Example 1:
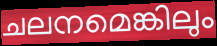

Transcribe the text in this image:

ചലനമെങ്കിലും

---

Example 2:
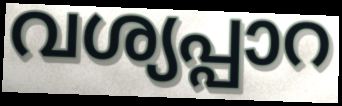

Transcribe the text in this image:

വശ്യപ്പാറ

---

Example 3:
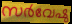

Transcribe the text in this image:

സർവേഷു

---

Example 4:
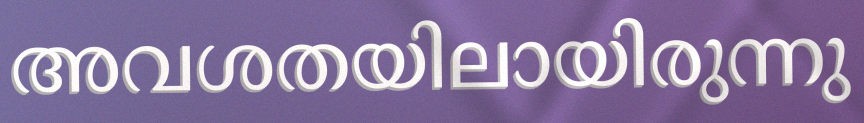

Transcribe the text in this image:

അവശതയിലായിരുന്നു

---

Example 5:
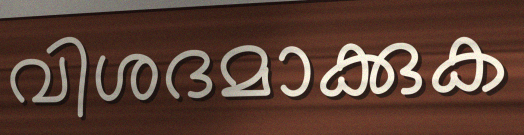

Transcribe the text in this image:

വിശദമാക്കുക